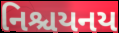
નિશ્ચયનય